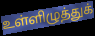
உள்ளிழுத்துக்